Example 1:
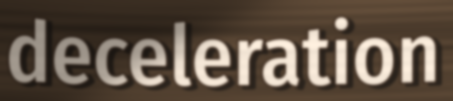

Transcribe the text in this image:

deceleration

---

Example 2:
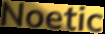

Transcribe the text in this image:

Noetic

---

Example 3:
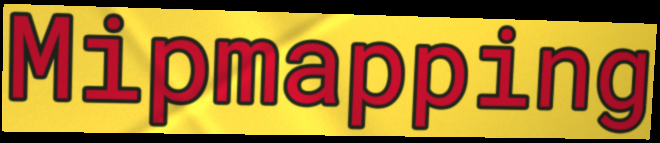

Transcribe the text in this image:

Mipmapping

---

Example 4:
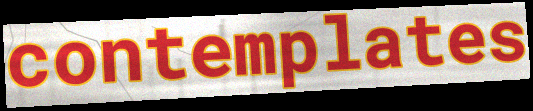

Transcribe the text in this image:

contemplates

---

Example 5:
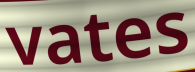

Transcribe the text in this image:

vates